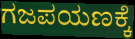
ಗಜಪಯಣಕ್ಕೆ